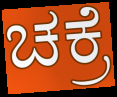
ಚಕ್ರೆ